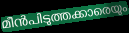
മീൻപിടുത്തക്കാരെയും